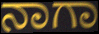
ನಾಗಾ